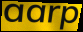
aarp